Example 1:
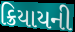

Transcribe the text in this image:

ક્રિયાયની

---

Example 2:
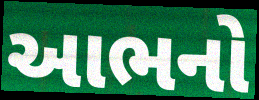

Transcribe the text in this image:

આભનો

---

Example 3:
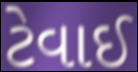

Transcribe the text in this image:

ટેવાઈ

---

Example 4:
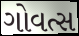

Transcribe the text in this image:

ગોવત્સ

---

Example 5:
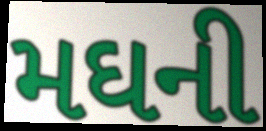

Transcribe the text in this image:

મઘની